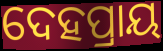
ଦେହପ୍ରାୟ